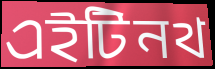
এইটিনথ